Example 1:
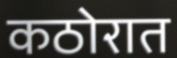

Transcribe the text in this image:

कठोरात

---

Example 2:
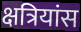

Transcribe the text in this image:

क्षत्रियांस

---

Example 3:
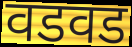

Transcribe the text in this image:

वडवड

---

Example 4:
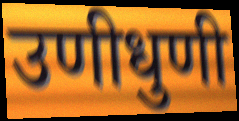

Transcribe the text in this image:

उणीधुणी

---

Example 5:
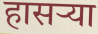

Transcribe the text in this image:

हासऱ्या